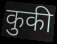
कुकी